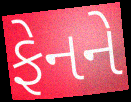
ફેનને